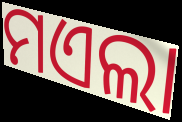
ମଏଲା